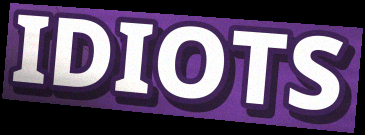
IDIOTS